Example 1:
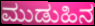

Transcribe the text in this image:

ಮುಡುಹಿನ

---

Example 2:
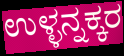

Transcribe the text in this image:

ಉಳ್ಳನ್ನಕ್ಕರ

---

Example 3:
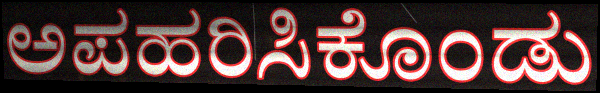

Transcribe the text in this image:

ಅಪಹರಿಸಿಕೊಂಡು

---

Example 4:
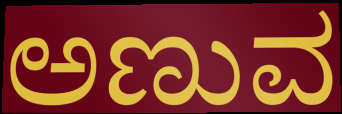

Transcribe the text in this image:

ಅಣುವ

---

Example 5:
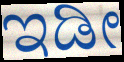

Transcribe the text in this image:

ಇಡೀ